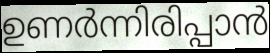
ഉണർന്നിരിപ്പാൻ